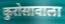
कुरोसावाला